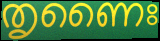
തൃണൈഃ